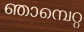
ഞാമ്പെറ്റ